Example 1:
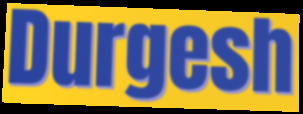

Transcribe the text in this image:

Durgesh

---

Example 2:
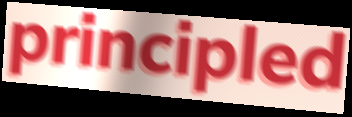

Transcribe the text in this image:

principled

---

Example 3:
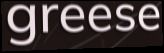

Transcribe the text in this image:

greese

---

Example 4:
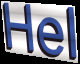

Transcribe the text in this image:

Hel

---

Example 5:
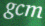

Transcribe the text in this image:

gcm